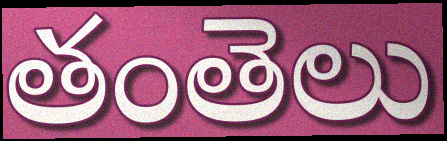
తంతెలు